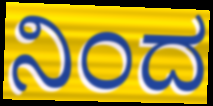
ನಿಂದ